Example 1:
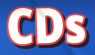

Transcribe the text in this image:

CDs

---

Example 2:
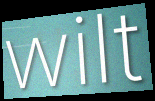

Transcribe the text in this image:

wilt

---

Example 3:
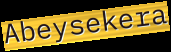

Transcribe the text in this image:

Abeysekera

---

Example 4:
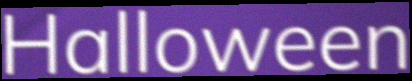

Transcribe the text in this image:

Halloween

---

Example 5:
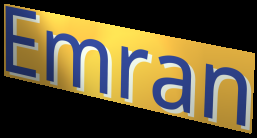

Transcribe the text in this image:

Emran